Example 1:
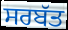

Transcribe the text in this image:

ਸਰਬੱਤ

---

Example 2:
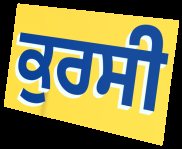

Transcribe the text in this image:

ਕੁਰਸੀ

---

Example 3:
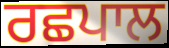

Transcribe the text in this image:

ਰਛਪਾਲ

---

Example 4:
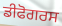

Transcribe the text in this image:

ਡੀਫੋਗਰਸ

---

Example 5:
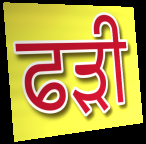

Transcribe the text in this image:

ਫੜੀ